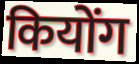
कियोंग